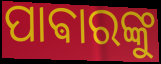
ପାଵାରଙ୍କୁ